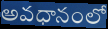
అవధానంలో